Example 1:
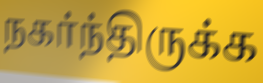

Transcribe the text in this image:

நகர்ந்திருக்க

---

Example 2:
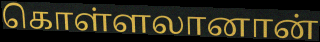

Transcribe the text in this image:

கொள்ளலானான்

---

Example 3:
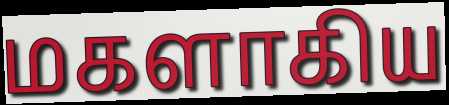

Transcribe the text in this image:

மகளாகிய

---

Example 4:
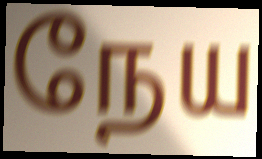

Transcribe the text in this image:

நேய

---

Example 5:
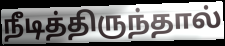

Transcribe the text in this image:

நீடித்திருந்தால்